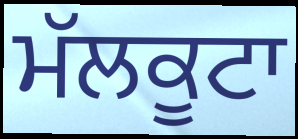
ਮੱਲਕੂਟਾ